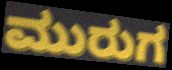
ಮುರುಗ